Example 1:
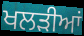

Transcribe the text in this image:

ਖਲੜੀਆਂ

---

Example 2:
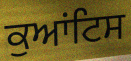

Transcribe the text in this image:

ਕੁਆਂਟਿਸ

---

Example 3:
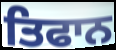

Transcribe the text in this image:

ਤਿਫਾਨ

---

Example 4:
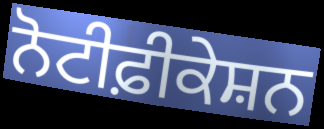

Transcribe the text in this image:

ਨੋਟੀਫ਼ੀਕੇਸ਼ਨ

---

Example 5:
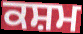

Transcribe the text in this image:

ਕਸ਼ਮ